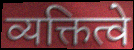
व्यक्तित्वे